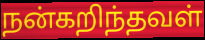
நன்கறிந்தவள்